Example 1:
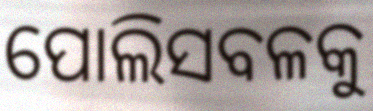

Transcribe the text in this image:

ପୋଲିସବଳକୁ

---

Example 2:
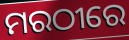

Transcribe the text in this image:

ମରଠୀରେ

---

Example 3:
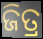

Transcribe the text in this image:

ଜିତ୍ର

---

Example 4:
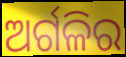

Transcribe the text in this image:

ଅର୍ଗଳିର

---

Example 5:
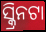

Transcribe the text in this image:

ସ୍କ୍ରିନଟା